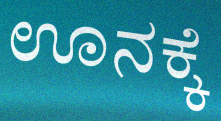
ಊನಕ್ಕೆ